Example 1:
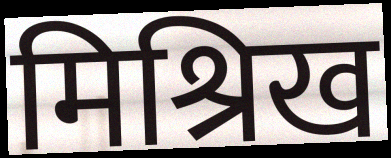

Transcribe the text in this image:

मिश्रिख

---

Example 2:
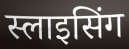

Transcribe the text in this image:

स्लाइसिंग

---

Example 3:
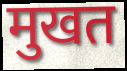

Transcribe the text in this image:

मुखत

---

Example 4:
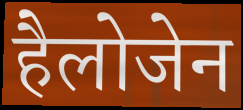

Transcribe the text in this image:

हैलोजेन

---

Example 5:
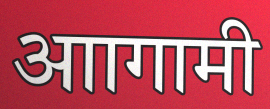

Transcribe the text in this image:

आागामी